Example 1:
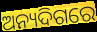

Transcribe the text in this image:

ଅନ୍ୟଦିଗରେ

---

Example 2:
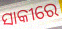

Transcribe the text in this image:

ସାକୀରେ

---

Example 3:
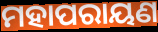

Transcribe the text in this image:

ମହାପରାୟଣ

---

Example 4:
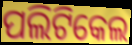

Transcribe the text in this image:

ପଲିଟିକେଲ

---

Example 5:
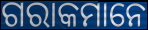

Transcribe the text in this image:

ଗରାକମାନେ